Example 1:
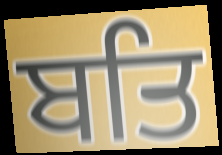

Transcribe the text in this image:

ਬਤਿ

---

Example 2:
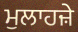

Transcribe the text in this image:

ਮੁਲਾਹਜ਼ੇ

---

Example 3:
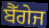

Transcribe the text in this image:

ਬੈੱਗੇਜ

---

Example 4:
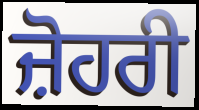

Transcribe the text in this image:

ਜ਼ੋਹਰੀ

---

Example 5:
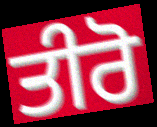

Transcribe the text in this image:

ਤੀਰੋ